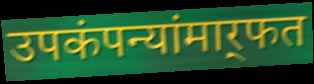
उपकंपन्यांमार्फत